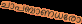
ചാപബാണധരോ